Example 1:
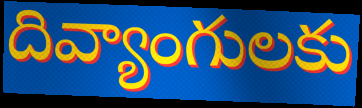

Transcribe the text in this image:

దివ్యాంగులకు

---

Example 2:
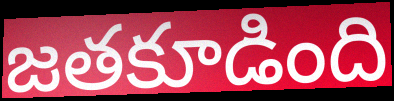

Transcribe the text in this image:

జతకూడింది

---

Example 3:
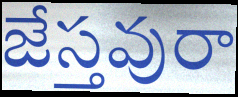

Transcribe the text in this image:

జేస్తవురా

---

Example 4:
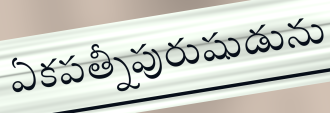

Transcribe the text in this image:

ఏకపత్నీపురుషుడును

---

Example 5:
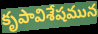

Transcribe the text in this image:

కృపావిశేషమున